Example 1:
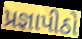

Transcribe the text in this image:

પ્રજ્ઞાપીઠો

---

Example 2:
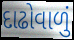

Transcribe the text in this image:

દાઢોવાળું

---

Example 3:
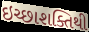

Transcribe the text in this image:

ઇચ્છાશક્તિથી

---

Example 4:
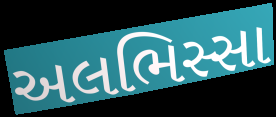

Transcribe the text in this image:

અલભિસ્સા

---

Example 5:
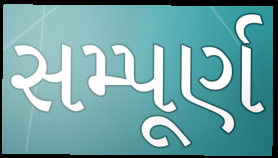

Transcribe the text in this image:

સમ્પૂર્ણ